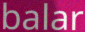
balar